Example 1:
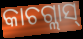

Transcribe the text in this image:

କାଚଗ୍ଲାସ୍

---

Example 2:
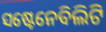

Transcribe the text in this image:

ସଷ୍ଟେନେବିଲିଟି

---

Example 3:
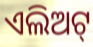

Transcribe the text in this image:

ଏଲିଅଟ୍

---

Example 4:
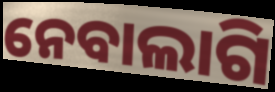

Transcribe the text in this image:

ନେବାଲାଗି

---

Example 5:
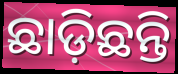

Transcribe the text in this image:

ଛାଡ଼ିଛନ୍ତି